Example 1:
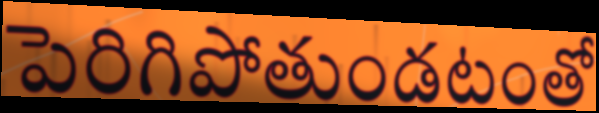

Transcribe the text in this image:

పెరిగిపోతుండటంతో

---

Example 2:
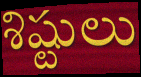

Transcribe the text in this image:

శిష్టులు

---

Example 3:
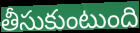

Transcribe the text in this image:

తీసుకుంటుంది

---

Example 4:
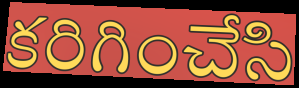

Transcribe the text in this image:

కరిగించేసి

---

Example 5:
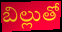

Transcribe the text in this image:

బిల్లుతో